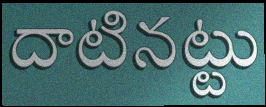
దాటినట్టు